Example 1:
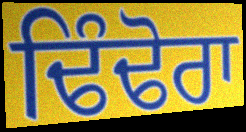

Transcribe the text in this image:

ਢਿੰਢੋਰਾ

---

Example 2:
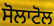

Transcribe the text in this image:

ਸੋਲਾਟੋਲ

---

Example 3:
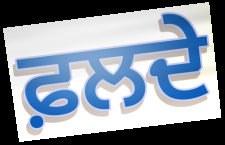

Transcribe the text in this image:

ਫ਼ਲਦੇ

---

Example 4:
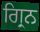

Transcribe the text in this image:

ਗ੍ਰਿਨ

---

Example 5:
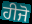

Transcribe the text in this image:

ਹੀਜੋ